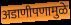
अडाणीपणामुळे